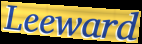
Leeward